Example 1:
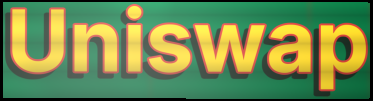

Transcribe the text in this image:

Uniswap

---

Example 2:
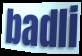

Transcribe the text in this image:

badli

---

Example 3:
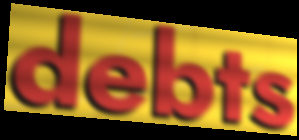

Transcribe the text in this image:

debts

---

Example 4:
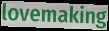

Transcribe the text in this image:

lovemaking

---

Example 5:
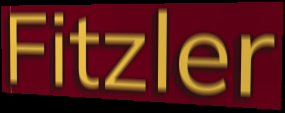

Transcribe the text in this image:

Fitzler